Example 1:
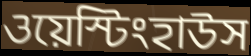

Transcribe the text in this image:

ওয়েস্টিংহাউস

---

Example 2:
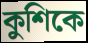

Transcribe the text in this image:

কুশিকে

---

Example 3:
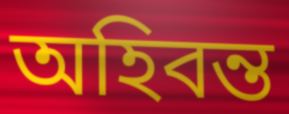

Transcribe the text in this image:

অহিবন্ত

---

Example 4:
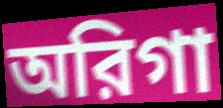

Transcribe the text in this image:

অরিগা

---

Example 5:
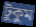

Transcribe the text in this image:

টুকুম